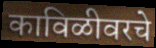
काविळीवरचे